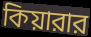
কিয়ারার